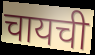
चायची